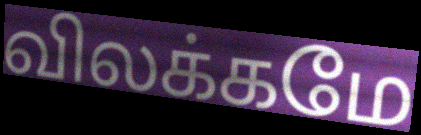
விலக்கமே